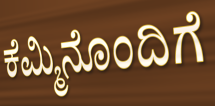
ಕೆಮ್ಮಿನೊಂದಿಗೆ